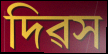
দিৱস